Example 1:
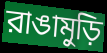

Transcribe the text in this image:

রাঙামুড়ি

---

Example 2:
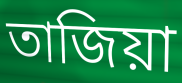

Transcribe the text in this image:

তাজিয়া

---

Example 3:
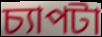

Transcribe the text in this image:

চ্যাপটা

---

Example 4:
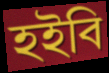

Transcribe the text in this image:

হইবি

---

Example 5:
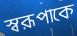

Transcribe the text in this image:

স্বরূপাকে